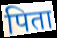
पिता